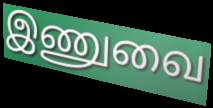
இணுவை